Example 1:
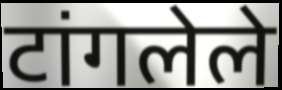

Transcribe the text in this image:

टांगलेले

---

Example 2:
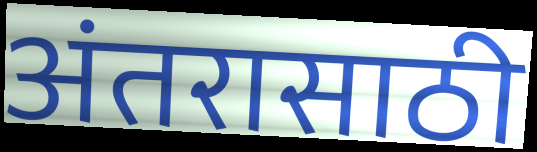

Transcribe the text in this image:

अंतरासाठी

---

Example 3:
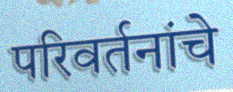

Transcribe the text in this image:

परिवर्तनांचे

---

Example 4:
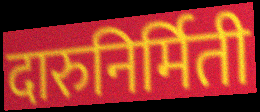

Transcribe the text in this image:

दारुनिर्मिती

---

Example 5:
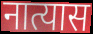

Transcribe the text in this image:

नात्यास